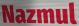
Nazmul